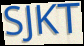
SJKT